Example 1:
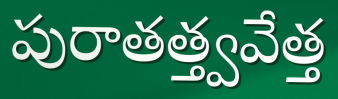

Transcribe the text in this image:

పురాతత్త్వవేత్త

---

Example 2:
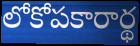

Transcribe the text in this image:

లోకోపకారార్థ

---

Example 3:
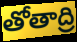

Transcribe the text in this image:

తోతాద్రి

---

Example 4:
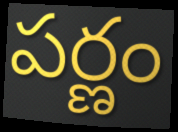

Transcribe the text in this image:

పర్ణం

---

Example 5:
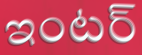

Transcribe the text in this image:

ఇంటర్